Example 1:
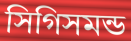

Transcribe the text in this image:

সিগিসমন্ড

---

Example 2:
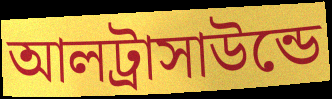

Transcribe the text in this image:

আলট্রাসাউন্ডে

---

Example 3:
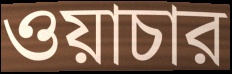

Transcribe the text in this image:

ওয়াচার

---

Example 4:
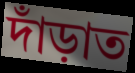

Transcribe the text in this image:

দাঁড়াত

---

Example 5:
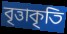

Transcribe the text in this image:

বৃত্তাকৃতি